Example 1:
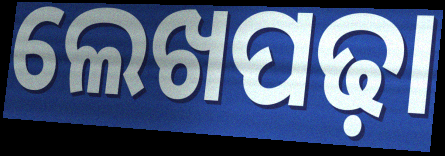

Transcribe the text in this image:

ଲେଖପଢ଼ା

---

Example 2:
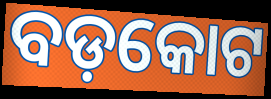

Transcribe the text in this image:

ବଡ଼କୋଟ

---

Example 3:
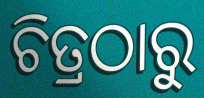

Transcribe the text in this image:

ଚିତ୍ରଠାରୁ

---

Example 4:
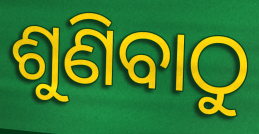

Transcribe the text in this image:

ଶୁଣିବାଠୁ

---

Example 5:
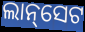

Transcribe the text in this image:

ଲାନ୍‌ସେଟ